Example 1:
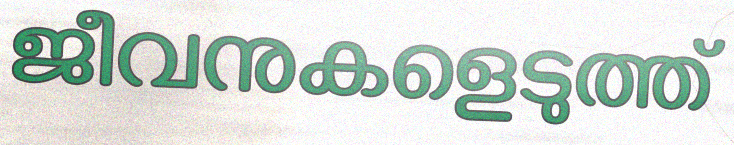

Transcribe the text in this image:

ജീവനുകളെടുത്ത്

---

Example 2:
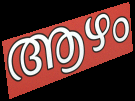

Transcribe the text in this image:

ആഴം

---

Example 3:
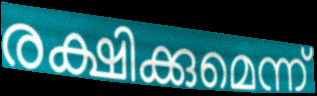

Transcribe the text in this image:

രക്ഷിക്കുമെന്ന്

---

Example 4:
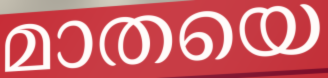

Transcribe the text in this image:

മാതയെ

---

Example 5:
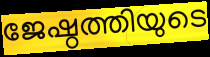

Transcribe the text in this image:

ജേഷ്ഠത്തിയുടെ